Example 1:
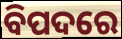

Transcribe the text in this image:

ବିପଦରେ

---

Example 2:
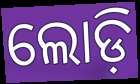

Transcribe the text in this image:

ଲୋଡ଼ି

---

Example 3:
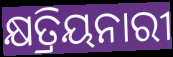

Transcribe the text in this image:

କ୍ଷତ୍ରିୟନାରୀ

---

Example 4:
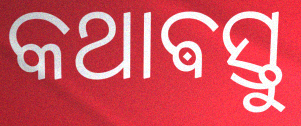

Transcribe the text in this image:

କଥାଵସ୍ତୁ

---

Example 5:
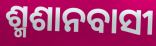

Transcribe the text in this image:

ଶ୍ମଶାନବାସୀ